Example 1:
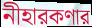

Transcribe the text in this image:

নীহারকণার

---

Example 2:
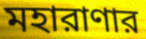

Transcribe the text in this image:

মহারাণার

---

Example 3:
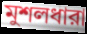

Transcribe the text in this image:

মুশলধারা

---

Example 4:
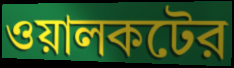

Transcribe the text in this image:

ওয়ালকটের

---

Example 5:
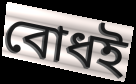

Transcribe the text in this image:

বোধই